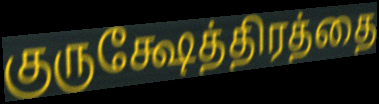
குருக்ஷேத்திரத்தை